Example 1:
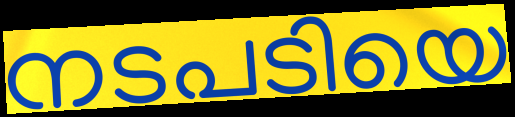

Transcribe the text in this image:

നടപടിയെ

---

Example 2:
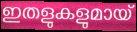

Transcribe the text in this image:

ഇതളുകളുമായ്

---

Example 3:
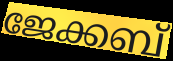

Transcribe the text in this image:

ജേക്കബ്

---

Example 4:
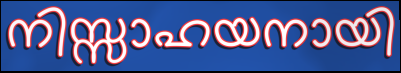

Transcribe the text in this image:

നിസ്സാഹയനായി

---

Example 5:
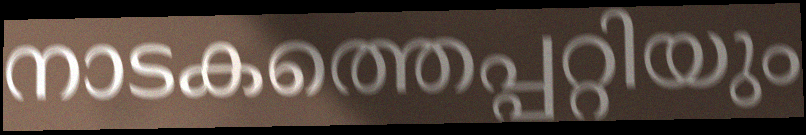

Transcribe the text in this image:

നാടകത്തെപ്പറ്റിയും